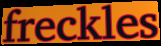
freckles